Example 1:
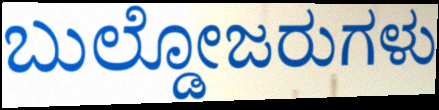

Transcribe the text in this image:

ಬುಲ್ಡೋಜರುಗಳು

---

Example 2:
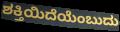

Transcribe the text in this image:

ಶಕ್ತಿಯಿದೆಯೆಂಬುದು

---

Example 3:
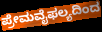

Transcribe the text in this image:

ಪ್ರೇಮವೈಫಲ್ಯದಿಂದ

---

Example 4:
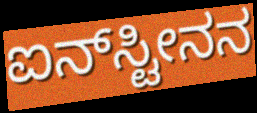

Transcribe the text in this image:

ಐನ್‌ಸ್ಟೀನನ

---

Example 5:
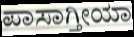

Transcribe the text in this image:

ಪಾಸಾಗ್ತೀಯಾ